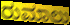
ರುಮಾಲು